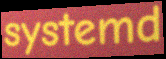
systemd